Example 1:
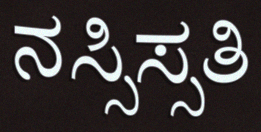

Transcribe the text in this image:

ನಸ್ಸಿಸ್ಸತಿ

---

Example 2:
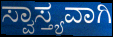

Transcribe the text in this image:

ಸ್ವಾಸ್ತ್ಯವಾಗಿ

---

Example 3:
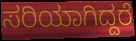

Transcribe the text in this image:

ಸರಿಯಾಗಿದ್ದರೆ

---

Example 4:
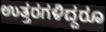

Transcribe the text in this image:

ಉತ್ತರಗಳಿದ್ದರೂ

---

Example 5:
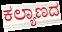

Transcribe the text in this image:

ಕಲ್ಯಾಣದ